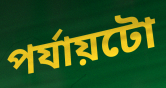
পৰ্যায়টো